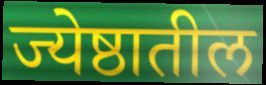
ज्येष्ठातील